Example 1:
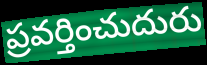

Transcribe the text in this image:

ప్రవర్తించుదురు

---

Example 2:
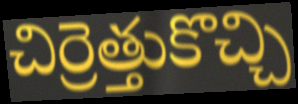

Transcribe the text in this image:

చిర్రెత్తుకొచ్చి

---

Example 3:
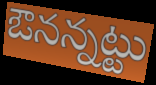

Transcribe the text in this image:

ఔనన్నట్టు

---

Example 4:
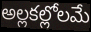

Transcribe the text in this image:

అల్లకల్లోలమే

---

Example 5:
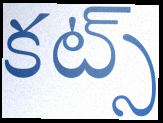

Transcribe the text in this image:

కట్స్